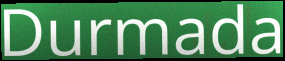
Durmada